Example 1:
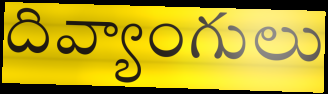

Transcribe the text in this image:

దివ్యాంగులు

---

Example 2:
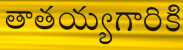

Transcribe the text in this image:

తాతయ్యగారికి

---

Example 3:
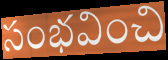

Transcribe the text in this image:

సంభవించి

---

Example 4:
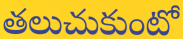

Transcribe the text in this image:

తలుచుకుంటో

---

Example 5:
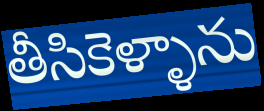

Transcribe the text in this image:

తీసికెళ్ళాను